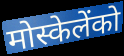
मोस्केलेंको